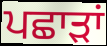
ਪਛਾੜਾਂ